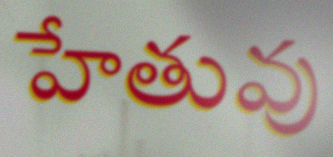
హేతువు